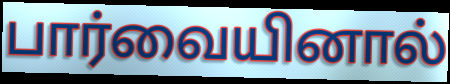
பார்வையினால்